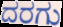
ದರಗು